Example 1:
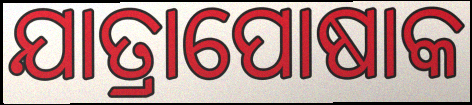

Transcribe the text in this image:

ଯାତ୍ରାପୋଷାକ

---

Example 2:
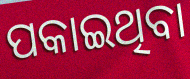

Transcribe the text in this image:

ପକାଇଥିବା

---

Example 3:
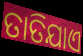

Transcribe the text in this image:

ତାତିଯାଏ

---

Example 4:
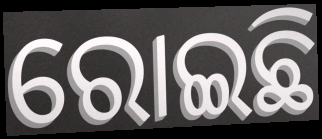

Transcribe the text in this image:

ରୋଇଛି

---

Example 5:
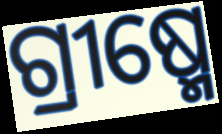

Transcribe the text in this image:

ଗ୍ରୀଷ୍ମେ